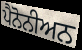
ਪੈਨੋਨੀਅਨ